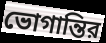
ভোগান্তির